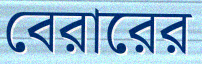
বেরারের